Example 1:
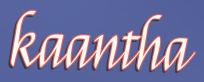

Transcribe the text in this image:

kaantha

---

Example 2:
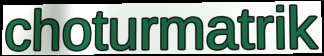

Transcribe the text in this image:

choturmatrik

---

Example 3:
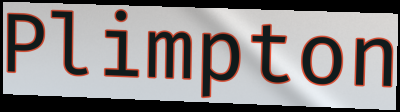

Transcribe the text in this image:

Plimpton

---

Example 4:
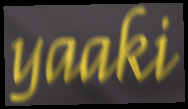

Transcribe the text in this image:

yaaki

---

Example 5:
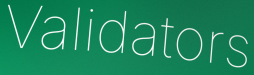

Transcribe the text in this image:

Validators